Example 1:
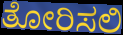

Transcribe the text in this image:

ತೋರಿಸಲಿ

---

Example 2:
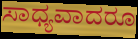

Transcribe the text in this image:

ಸಾಧ್ಯವಾದರೂ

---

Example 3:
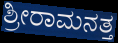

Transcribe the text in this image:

ಶ್ರೀರಾಮನತ್ತ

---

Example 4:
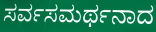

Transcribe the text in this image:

ಸರ್ವಸಮರ್ಥನಾದ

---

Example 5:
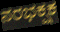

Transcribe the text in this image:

ನರಭಕ್ಷಕ